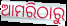
ଆମରିଠାରୁ